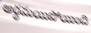
అర్ధమయిపోయింది